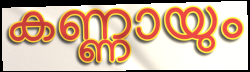
കണ്ണായും